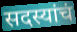
सदस्यांचं